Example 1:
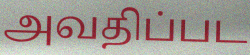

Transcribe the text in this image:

அவதிப்பட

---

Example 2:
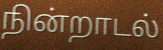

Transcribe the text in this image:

நின்றாடல்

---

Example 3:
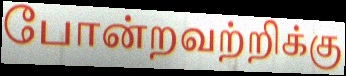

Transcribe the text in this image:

போன்றவற்றிக்கு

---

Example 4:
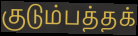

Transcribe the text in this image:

குடும்பத்தக்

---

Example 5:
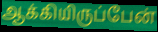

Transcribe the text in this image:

ஆக்கியிருப்பேன்